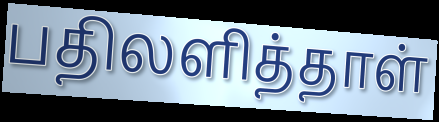
பதிலளித்தாள்